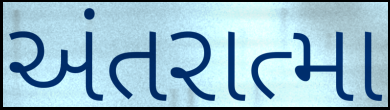
અંતરાત્મા